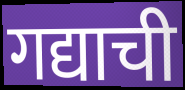
गद्याची